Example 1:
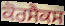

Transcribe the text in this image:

ਕੋਰਸੈਕਸ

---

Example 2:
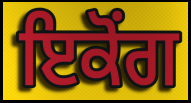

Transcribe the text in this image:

ਇਕੋਂਗ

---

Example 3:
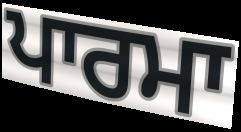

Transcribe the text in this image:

ਪਾਰਮਾ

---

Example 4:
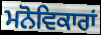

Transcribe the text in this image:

ਮਨੋਵਿਕਾਰਾਂ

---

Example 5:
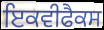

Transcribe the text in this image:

ਇਕਵੀਫੈਕਸ